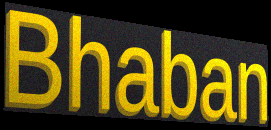
Bhaban